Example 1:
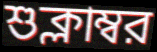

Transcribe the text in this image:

শুক্লাম্বর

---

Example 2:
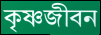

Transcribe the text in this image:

কৃষ্ণজীবন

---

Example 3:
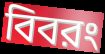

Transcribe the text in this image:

বিবরং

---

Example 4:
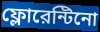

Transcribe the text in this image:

ফ্লোরেন্টিনো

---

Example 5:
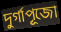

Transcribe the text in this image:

দুর্গাপূজো